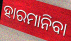
ହାରମାନିବା